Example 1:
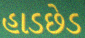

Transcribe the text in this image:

હાડછેડ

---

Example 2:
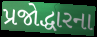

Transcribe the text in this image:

પ્રજોદ્ધારના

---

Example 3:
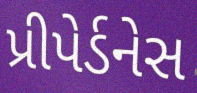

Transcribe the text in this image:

પ્રીપેર્ડનેસ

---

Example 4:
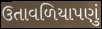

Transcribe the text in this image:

ઉતાવળિયાપણું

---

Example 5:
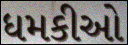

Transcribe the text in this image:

ધમકીઓ